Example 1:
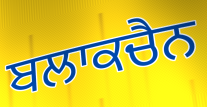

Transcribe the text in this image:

ਬਲਾਕਚੈਨ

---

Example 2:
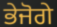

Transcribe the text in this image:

ਭੇਜੋਗੇ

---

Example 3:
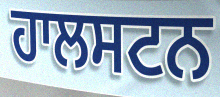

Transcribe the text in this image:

ਹਾਲਸਟਨ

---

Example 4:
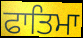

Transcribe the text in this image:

ਫਾਤਿਮਾ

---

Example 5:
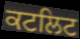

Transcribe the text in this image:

ਕਟਲਿਟ